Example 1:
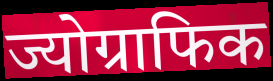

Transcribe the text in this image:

ज्योग्राफिक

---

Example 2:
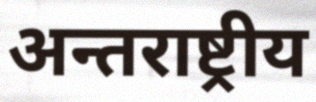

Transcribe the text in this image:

अन्तराष्ट्रीय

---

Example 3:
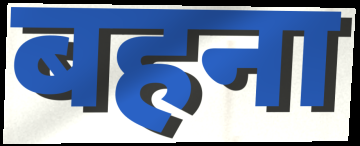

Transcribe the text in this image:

बहना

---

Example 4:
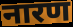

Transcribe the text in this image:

नारण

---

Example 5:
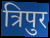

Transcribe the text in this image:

त्रिपुर